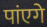
पांएगे